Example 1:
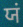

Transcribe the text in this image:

ਯਂ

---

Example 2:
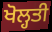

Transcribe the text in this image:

ਖੋਲ੍ਹਤੀ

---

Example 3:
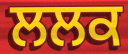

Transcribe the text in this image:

ਲਲਕ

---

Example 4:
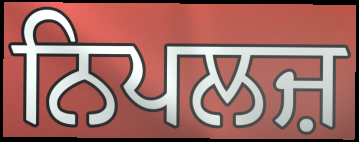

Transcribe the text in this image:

ਨਿਪਲਜ਼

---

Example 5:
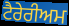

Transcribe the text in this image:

ਟੈਰੇਰੀਅਮ